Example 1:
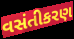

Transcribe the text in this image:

વસંતીકરણ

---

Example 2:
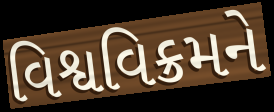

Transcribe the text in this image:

વિશ્વવિક્રમને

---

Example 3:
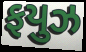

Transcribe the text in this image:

ફયુઝ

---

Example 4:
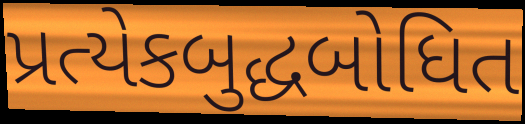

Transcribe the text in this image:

પ્રત્યેકબુદ્ધબોધિત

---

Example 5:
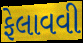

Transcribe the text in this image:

ફેલાવવી